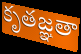
కృతజ్ఞతా